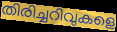
തിരിച്ചറിവുകളെ